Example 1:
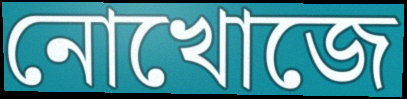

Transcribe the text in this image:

নোখোজে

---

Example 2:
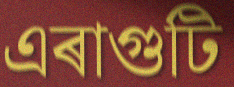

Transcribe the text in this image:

এৰাগুটি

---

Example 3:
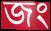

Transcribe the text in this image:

জং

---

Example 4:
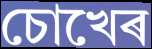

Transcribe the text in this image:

চোখেৰ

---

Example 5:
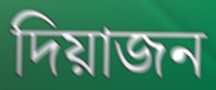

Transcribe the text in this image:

দিয়াজন